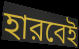
হারবেই